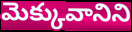
మెక్కువానిని